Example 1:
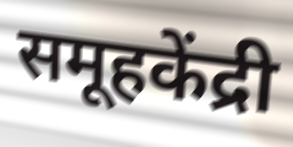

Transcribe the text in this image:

समूहकेंद्री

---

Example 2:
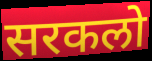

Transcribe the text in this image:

सरकलो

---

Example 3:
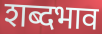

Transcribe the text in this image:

शब्दभाव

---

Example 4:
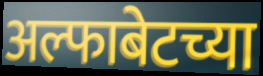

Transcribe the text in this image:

अल्फाबेटच्या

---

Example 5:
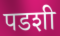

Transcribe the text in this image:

पडशी